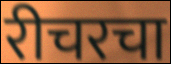
रीचरचा